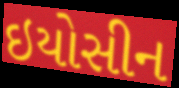
ઇયોસીન